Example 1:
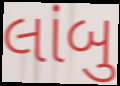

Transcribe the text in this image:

લાંબુ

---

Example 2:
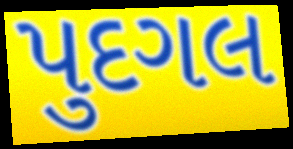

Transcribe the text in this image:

પુદગલ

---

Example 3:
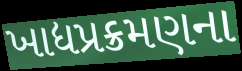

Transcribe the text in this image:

ખાદ્યપ્રક્રમણના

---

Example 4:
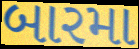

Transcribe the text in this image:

બારમા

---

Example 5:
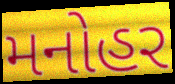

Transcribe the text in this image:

મનોહર